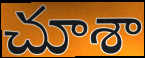
చూశా